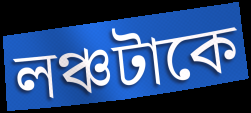
লঞ্চটাকে